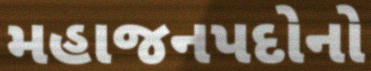
મહાજનપદોનો